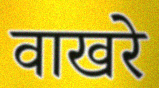
वाखरे